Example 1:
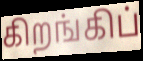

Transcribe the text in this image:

கிறங்கிப்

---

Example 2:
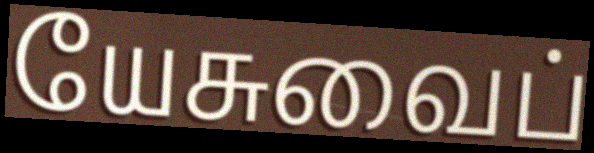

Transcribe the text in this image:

யேசுவைப்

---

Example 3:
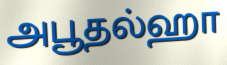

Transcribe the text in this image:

அபூதல்ஹா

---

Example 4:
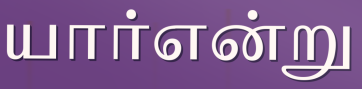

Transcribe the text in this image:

யார்என்று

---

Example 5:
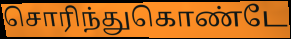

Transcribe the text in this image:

சொரிந்துகொண்டே